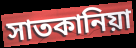
সাতকানিয়া